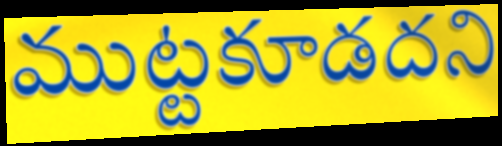
ముట్టకూడదని